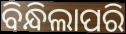
ବିନ୍ଧିଲାପରି